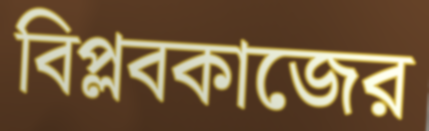
বিপ্লবকাজের